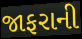
જાફરાની